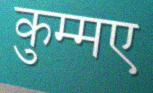
कुम्मए